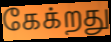
கேக்றது